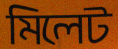
মিলেট